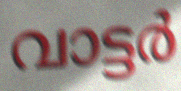
വാട്ടർ